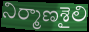
నిర్మాణశైలి